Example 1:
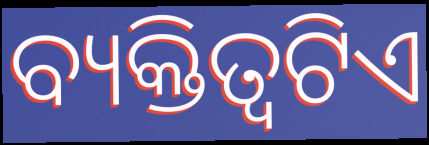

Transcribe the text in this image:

ବ୍ୟକ୍ତିତ୍ବଟିଏ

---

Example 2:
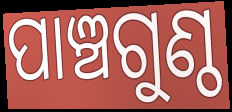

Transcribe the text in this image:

ପାଞ୍ଚଗୁଣ୍ଠ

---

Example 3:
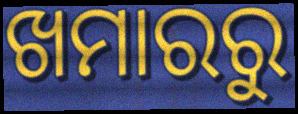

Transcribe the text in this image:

ଖମାରରୁ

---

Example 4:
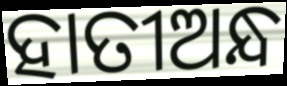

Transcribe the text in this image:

ହାତୀଅନ୍ଧ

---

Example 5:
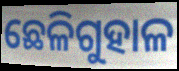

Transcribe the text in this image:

ଛେଳିଗୁହାଳ